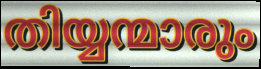
തിയ്യന്മാരും